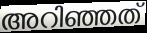
അറിഞ്ഞത്